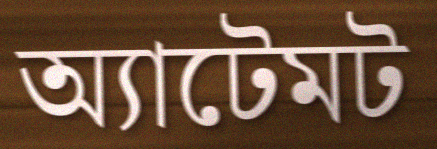
অ্যাটেমট